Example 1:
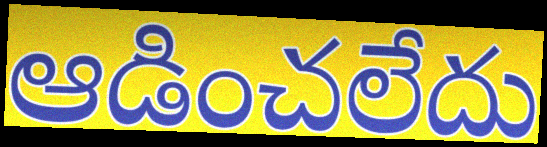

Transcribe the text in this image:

ఆడించలేదు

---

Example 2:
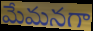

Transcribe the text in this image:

మేమనగా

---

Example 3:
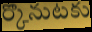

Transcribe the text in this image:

ర్కొనుటకు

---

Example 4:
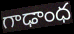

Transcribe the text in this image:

గాఢాంధ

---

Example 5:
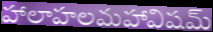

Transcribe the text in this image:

హాలాహలమహావిషమ్